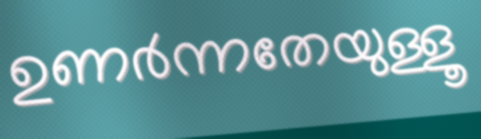
ഉണർന്നതേയുള്ളൂ